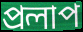
প্রলাপ